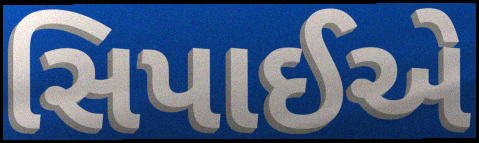
સિપાઈએ